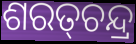
ଶରତ୍‌ଚନ୍ଦ୍ର